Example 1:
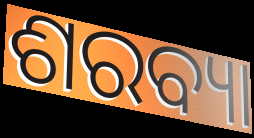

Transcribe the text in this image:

ଶରବ୍ୟା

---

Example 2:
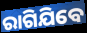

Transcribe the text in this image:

ରାଗିଯିବେ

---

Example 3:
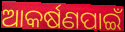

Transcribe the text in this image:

ଆକର୍ଷଣପାଇଁ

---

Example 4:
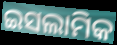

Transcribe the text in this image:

ଇସଲାମିକ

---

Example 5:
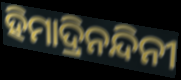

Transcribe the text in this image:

ହିମାଦ୍ରିନନ୍ଦିନୀ